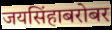
जयसिंहाबरोबर